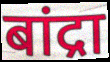
बांद्रा